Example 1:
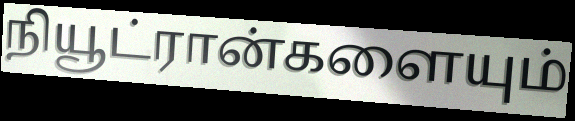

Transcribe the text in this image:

நியூட்ரான்களையும்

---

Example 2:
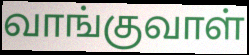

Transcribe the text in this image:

வாங்குவாள்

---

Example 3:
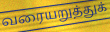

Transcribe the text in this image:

வரையறுத்துக்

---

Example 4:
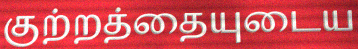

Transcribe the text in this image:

குற்றத்தையுடைய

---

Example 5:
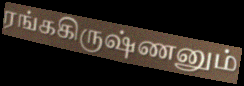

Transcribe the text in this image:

ரங்ககிருஷ்ணனும்